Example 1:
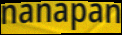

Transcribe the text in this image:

nanapan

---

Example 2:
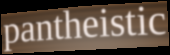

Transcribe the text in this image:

pantheistic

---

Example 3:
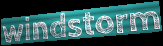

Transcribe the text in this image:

windstorm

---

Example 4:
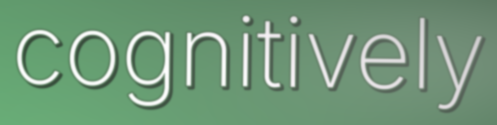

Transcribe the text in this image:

cognitively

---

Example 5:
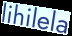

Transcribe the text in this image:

lihilela